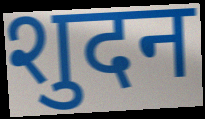
शुदन